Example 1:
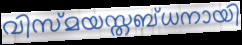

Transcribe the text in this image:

വിസ്മയസ്തബ്ധനായി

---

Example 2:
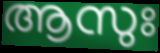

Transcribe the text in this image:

ആസുഃ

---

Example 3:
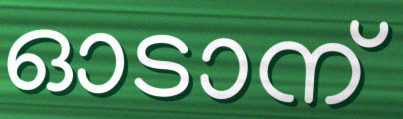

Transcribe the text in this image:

ഓടാന്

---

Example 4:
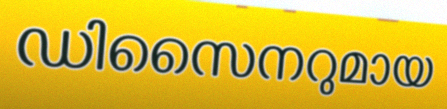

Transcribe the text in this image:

ഡിസൈനറുമായ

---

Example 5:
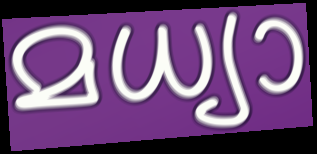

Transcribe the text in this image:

മധ്യാ